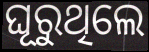
ଘୂରୁଥିଲେ